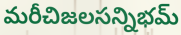
మరీచిజలసన్నిభమ్